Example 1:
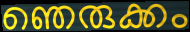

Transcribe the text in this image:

ഞെരുക്കം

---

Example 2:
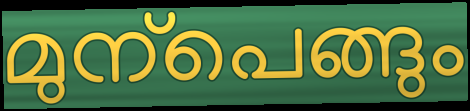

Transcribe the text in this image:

മുന്പെങ്ങും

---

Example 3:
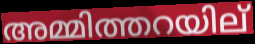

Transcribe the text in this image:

അമ്മിത്തറയില്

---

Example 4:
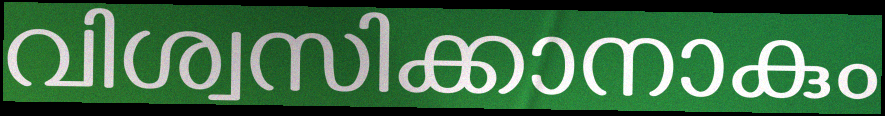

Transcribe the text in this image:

വിശ്വസിക്കാനാകും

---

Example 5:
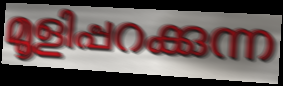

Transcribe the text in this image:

മൂളിപ്പറക്കുന്ന